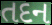
તદન